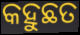
କହୁଛତ